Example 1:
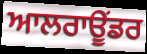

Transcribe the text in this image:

ਆਲਰਾਊਂਡਰ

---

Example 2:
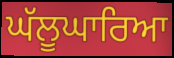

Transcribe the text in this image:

ਘੱਲੂਘਾਰਿਆ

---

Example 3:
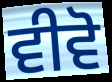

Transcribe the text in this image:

ਵੀਵੋ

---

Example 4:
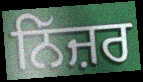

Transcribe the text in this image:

ਨਿੱਜ਼ਰ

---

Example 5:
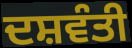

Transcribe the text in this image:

ਦਸ਼ਵੰਤੀ